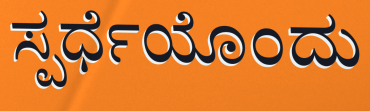
ಸ್ಪರ್ಧೆಯೊಂದು